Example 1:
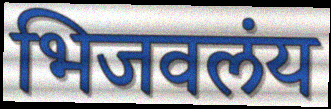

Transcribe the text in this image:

भिजवलंय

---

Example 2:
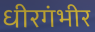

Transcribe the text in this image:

धीरगंभीर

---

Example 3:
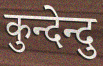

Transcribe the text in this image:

कुन्देन्दु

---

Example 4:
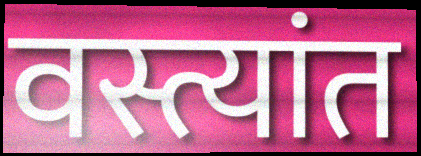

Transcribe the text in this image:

वस्त्यांत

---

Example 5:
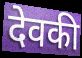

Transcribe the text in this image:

देवकी